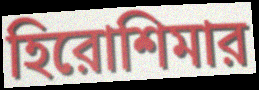
হিরোশিমার